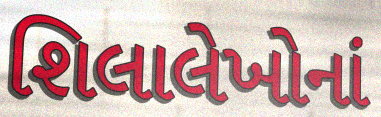
શિલાલેખોનાં